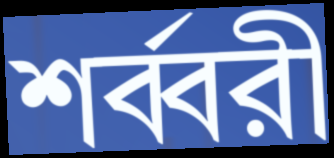
শর্ব্বরী